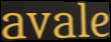
avale